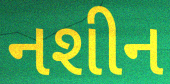
નશીન